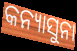
କନ୍ୟାସୁନା